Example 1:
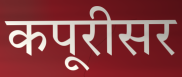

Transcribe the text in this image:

कपूरीसर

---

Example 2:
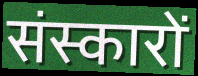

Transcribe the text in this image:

संस्कारों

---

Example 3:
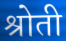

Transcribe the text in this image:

श्रोती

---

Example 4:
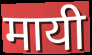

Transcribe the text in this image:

मायी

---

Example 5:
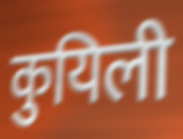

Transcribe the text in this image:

कुयिली